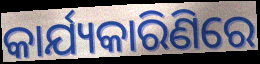
କାର୍ଯ୍ୟକାରିଣିରେ